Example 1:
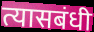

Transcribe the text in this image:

त्यासबंधी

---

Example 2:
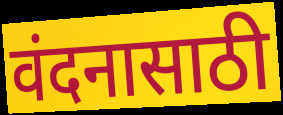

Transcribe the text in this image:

वंदनासाठी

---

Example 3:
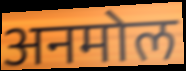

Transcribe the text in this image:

अनमोल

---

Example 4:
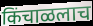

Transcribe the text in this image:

किंचाळलाच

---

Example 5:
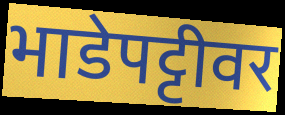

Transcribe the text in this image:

भाडेपट्टीवर